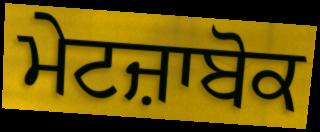
ਮੇਟਜ਼ਾਬੋਕ